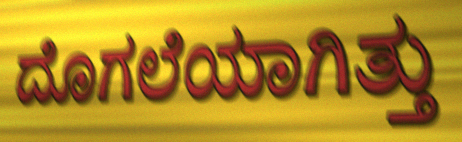
ದೊಗಲೆಯಾಗಿತ್ತು